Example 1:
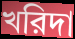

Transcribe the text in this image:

খরিদা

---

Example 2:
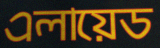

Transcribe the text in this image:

এলায়েড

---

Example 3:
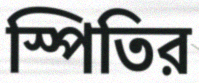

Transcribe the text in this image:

স্পিতির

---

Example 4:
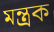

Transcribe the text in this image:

মন্ত্রক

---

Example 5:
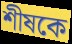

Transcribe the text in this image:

শীষকে